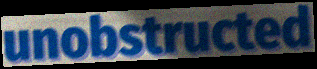
unobstructed